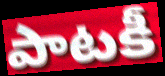
పాటకీ